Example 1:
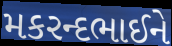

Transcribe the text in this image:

મકરન્દભાઈને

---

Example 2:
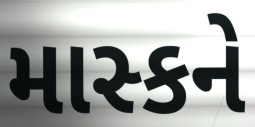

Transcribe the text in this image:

માસ્કને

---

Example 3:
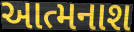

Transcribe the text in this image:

આત્મનાશ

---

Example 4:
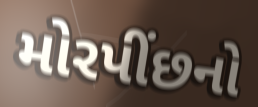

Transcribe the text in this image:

મોરપીંછનો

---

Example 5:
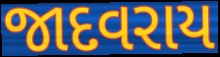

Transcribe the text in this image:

જાદવરાય